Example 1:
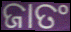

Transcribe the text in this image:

ଜାତଂ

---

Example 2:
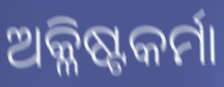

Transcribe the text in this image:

ଅକ୍ଳିଷ୍ଟକର୍ମା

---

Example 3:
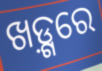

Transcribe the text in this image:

ଖଡ଼୍ଗରେ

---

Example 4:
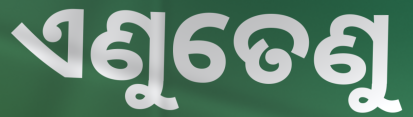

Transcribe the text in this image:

ଏଣୁତେଣୁ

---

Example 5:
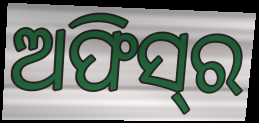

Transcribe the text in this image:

ଅଫିସ୍‌ର